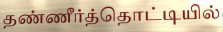
தண்ணீர்த்தொட்டியில்